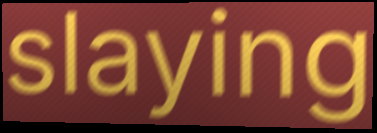
slaying